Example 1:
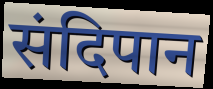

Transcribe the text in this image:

संदिपान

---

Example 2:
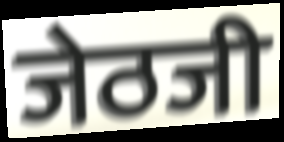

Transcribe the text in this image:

जेठजी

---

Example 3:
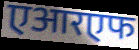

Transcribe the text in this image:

एआरएफ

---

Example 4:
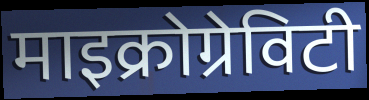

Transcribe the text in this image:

माइक्रोग्रेविटी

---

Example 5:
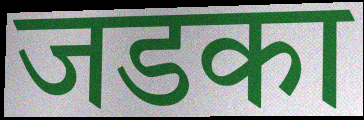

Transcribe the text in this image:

जडका